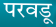
परवडू